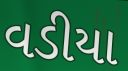
વડીયા